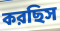
করছিস